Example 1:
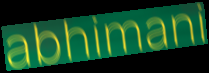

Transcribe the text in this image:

abhimani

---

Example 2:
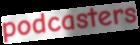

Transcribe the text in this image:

podcasters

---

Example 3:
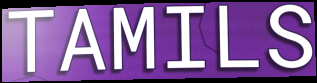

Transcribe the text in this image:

TAMILS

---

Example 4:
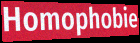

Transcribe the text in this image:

Homophobie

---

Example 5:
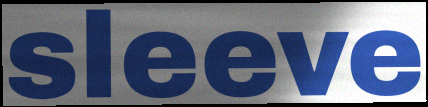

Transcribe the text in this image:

sleeve